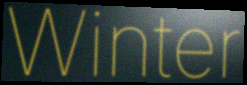
Winter